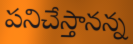
పనిచేస్తానన్న